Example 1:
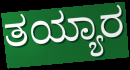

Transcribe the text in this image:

ತಯ್ಯಾರ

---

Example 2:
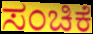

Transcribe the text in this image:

ಸಂಚಿಕೆ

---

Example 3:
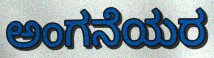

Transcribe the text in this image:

ಅಂಗನೆಯರ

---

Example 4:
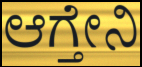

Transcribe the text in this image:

ಆಗ್ತೇನಿ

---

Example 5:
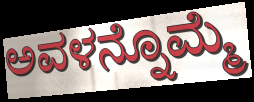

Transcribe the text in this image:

ಅವಳನ್ನೊಮ್ಮೆ